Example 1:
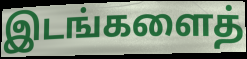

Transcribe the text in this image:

இடங்களைத்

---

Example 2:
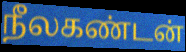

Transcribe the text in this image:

நீலகண்டன்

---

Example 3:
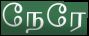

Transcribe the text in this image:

நேரே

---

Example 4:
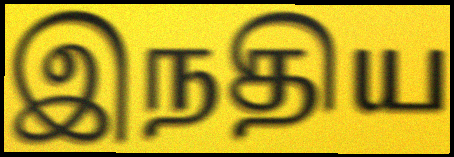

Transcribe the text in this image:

இநதிய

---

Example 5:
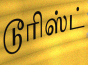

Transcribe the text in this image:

டூரிஸ்ட்